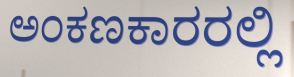
ಅಂಕಣಕಾರರಲ್ಲಿ